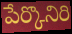
పేర్కొనిరి